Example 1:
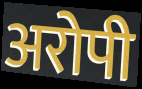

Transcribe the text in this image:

अरोपी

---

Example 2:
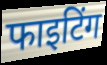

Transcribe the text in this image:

फाइटिंग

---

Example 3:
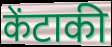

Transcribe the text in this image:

केंटाकी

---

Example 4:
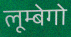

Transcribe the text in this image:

लूम्बेगो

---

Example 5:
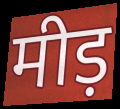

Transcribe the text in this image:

मीड़